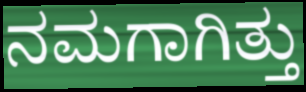
ನಮಗಾಗಿತ್ತು